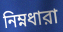
নিম্নধারা